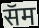
सॅम